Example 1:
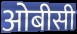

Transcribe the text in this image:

ओबीसी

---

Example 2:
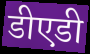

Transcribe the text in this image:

डीएडी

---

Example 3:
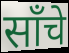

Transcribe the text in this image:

साँचे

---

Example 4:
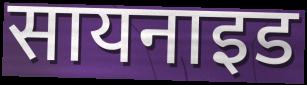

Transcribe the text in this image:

सायनाइड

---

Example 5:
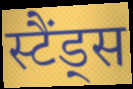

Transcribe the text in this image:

स्टैंड्स